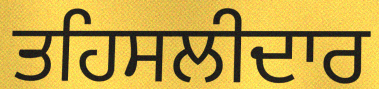
ਤਹਿਸਲੀਦਾਰ